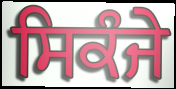
ਸਿਕੰਜੇ